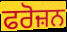
ਫਰੋਜ਼ਨ